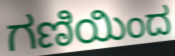
ಗಣಿಯಿಂದ